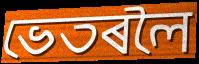
ভেতৰলৈ